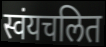
स्वंयचलित